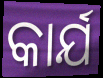
କାର୍ଯ